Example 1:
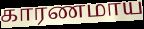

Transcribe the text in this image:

காரணமாய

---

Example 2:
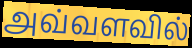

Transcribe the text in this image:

அவ்வளவில்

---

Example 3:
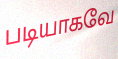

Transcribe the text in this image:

படியாகவே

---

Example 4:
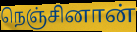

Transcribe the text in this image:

நெஞ்சினான்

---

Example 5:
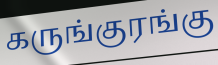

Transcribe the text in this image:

கருங்குரங்கு